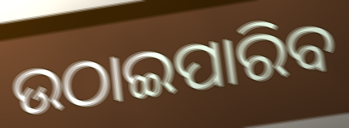
ଉଠାଇପାରିବ